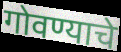
गोवण्याचे